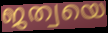
ജത്വയെ